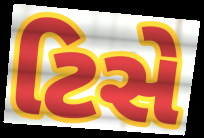
ટિસે